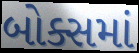
બોક્સમાં